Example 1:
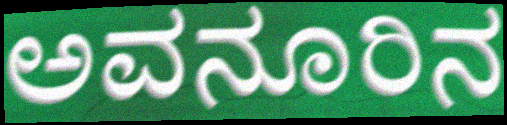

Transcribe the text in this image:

ಅವನೂರಿನ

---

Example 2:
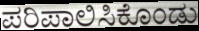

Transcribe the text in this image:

ಪರಿಪಾಲಿಸಿಕೊಂಡು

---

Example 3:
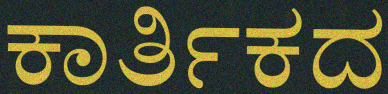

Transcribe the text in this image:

ಕಾರ್ತಿಕದ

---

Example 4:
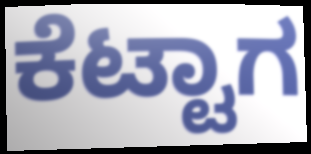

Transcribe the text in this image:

ಕೆಟ್ಟಾಗ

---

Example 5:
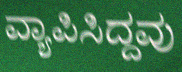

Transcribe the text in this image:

ವ್ಯಾಪಿಸಿದ್ದವು